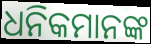
ଧନିକମାନଙ୍କ